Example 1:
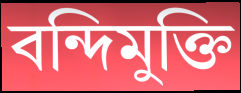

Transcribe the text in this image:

বন্দিমুক্তি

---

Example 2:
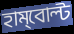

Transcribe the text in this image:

হাম্‌বোল্ট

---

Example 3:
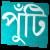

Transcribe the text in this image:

পুঁটি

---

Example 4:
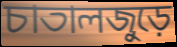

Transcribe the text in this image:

চাতালজুড়ে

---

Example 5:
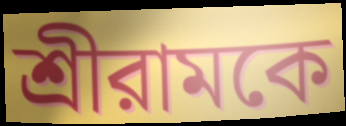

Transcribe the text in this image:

শ্রীরামকে